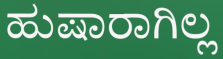
ಹುಷಾರಾಗಿಲ್ಲ